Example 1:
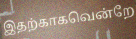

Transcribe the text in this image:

இதற்காகவென்றே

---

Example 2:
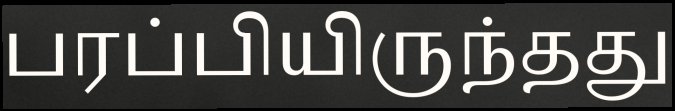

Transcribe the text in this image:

பரப்பியிருந்தது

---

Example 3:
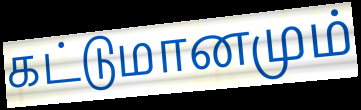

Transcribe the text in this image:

கட்டுமானமும்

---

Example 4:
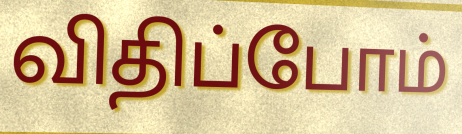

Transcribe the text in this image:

விதிப்போம்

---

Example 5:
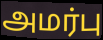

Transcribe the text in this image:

அமர்பு